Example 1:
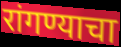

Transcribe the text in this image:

रांगण्याचा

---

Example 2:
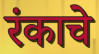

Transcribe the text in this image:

रंकाचे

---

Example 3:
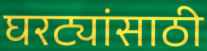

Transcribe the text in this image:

घरट्यांसाठी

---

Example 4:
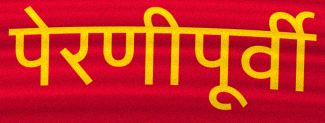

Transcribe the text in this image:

पेरणीपूर्वी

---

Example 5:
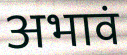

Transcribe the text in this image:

अभावं